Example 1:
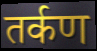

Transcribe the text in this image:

तर्कण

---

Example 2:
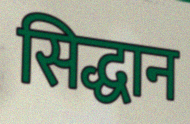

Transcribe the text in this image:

सिद्धान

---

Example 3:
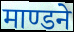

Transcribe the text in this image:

माण्डने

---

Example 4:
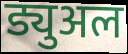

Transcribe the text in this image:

ड्युअल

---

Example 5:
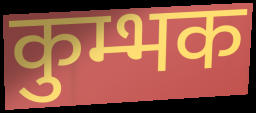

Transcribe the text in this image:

कुम्भक